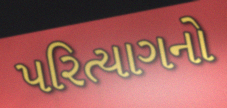
પરિત્યાગનો